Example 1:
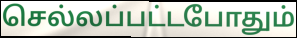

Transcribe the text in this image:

செல்லப்பட்டபோதும்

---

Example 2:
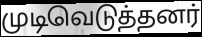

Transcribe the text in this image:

முடிவெடுத்தனர்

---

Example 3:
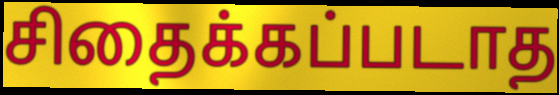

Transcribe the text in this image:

சிதைக்கப்படாத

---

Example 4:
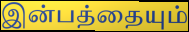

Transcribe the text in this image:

இன்பத்தையும்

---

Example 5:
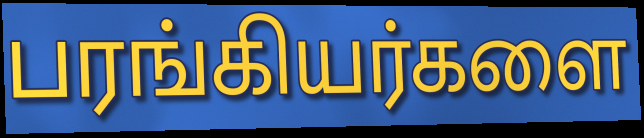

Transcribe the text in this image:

பரங்கியர்களை